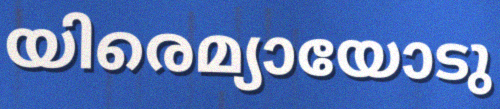
യിരെമ്യായോടു